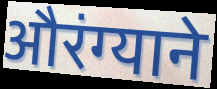
औरंग्याने